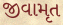
જીવામૃત